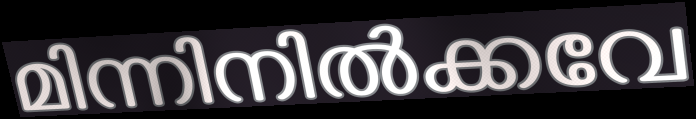
മിന്നിനിൽക്കവേ